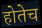
होतेच